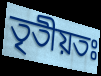
তৃতীয়তঃ